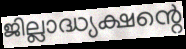
ജില്ലാദ്ധ്യക്ഷന്റെ